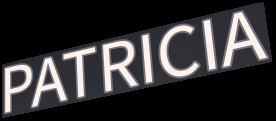
PATRICIA